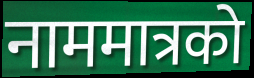
नाममात्रको